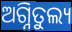
ଅଗ୍ନିତୁଲ୍ୟ